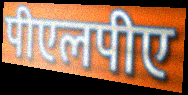
पीएलपीए